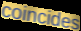
coincides